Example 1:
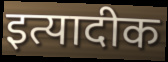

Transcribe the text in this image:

इत्यादीक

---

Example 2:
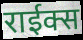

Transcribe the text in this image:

राईक्स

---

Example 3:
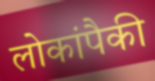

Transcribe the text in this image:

लोकांपैकी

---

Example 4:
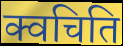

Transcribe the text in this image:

क्वचिति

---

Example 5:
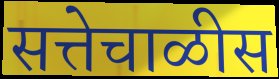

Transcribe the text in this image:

सत्तेचाळीस